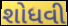
શોધવી